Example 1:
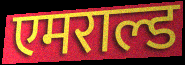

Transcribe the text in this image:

एमराल्‍ड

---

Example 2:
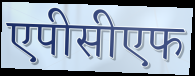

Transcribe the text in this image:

एपीसीएफ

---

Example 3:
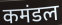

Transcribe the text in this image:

कमंडल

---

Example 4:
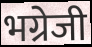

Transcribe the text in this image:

भग्रेजी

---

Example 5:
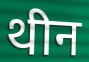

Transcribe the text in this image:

थीन